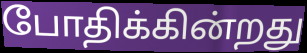
போதிக்கின்றது